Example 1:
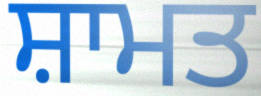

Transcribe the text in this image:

ਸ਼ਾਮਤ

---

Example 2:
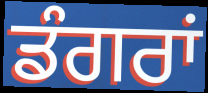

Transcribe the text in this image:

ਡੰਗਰਾਂ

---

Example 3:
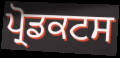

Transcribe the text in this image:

ਪ੍ਰੋਡਕਟਸ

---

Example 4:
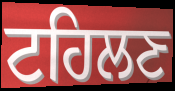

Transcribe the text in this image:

ਟਹਿਲਣ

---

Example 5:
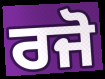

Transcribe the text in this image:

ਰਜੋ